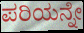
ಪರಿಯನ್ನೇ